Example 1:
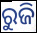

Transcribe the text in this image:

ରୁଜି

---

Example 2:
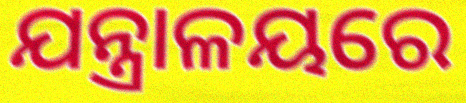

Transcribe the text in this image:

ଯନ୍ତ୍ରାଳୟରେ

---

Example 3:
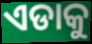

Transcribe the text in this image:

ଏଡାକୁ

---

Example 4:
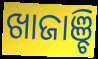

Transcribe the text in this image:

ଖାଜାଞ୍ଚି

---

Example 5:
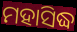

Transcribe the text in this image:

ମହାସିଦ୍ଧ